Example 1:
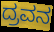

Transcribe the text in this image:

ದ್ರವನ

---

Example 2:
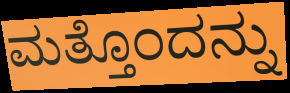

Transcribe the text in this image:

ಮತ್ತೊಂದನ್ನು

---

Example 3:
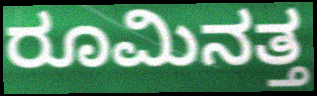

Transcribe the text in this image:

ರೂಮಿನತ್ತ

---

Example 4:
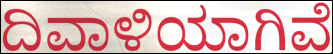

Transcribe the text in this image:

ದಿವಾಳಿಯಾಗಿವೆ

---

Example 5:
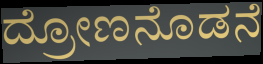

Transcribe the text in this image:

ದ್ರೋಣನೊಡನೆ